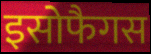
इसोफैगस